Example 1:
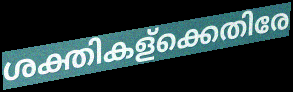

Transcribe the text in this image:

ശക്തികള്ക്കെതിരേ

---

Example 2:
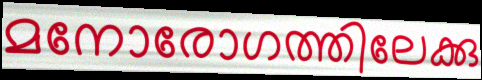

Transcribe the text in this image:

മനോരോഗത്തിലേക്കു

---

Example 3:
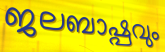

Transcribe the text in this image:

ജലബാഷ്പവും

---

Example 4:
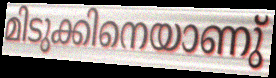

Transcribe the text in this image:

മിടുക്കിനെയാണു്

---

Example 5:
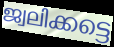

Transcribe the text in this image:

ജ്വലിക്കട്ടെ